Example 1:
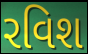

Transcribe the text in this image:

રવિશ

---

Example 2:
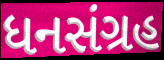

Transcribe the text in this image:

ધનસંગ્રહ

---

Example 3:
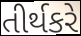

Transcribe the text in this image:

તીર્થકરે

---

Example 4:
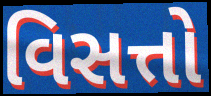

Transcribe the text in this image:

વિસત્તો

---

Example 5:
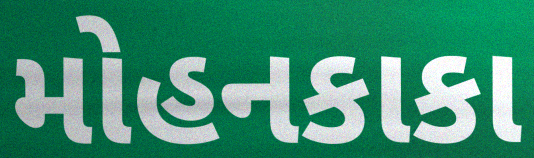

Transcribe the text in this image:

મોહનકાકા